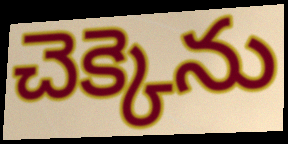
చెక్కెను